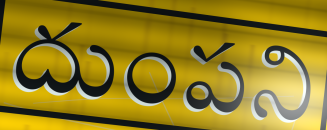
దుంపని